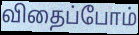
விதைப்போம்